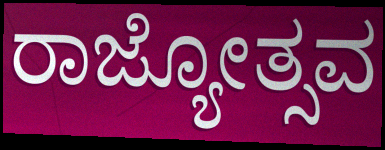
ರಾಜ್ಯೋತ್ಸವ